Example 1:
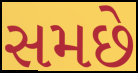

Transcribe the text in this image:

સમછે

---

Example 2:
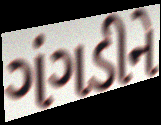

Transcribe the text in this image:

ગંગડીને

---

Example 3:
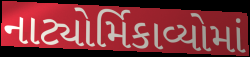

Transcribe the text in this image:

નાટ્યોર્મિકાવ્યોમાં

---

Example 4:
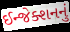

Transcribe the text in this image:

ઈન્જેક્શનનું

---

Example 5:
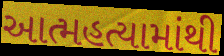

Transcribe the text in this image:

આત્મહત્યામાંથી